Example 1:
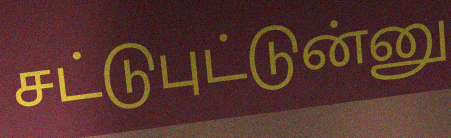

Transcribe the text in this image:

சட்டுபுட்டுன்னு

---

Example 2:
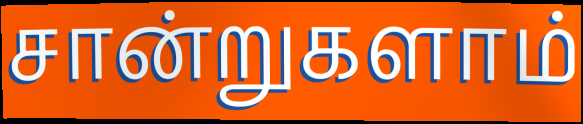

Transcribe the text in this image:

சான்றுகளாம்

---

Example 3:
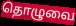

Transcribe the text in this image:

தொழுவை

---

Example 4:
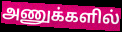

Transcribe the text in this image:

அணுக்களில்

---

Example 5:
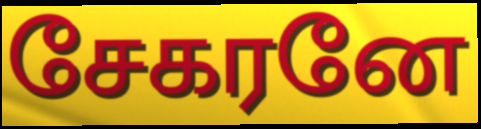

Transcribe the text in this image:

சேகரனே